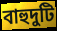
বাহুদুটি